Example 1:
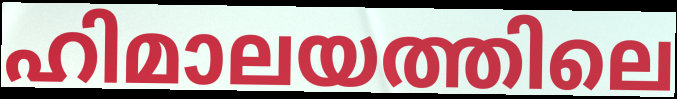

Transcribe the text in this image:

ഹിമാലയത്തിലെ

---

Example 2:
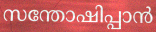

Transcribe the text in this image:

സന്തോഷിപ്പാൻ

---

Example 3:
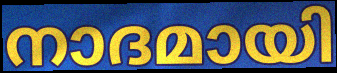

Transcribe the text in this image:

നാദമായി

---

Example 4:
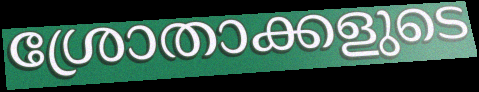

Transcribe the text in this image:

ശ്രോതാക്കളുടെ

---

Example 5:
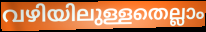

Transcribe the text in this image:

വഴിയിലുള്ളതെല്ലാം